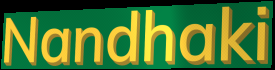
Nandhaki